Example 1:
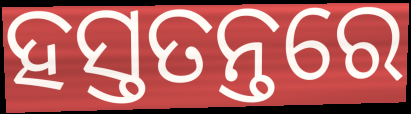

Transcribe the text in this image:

ହସ୍ତତନ୍ତରେ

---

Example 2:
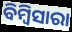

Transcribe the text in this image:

ବିମ୍ବିସାରା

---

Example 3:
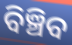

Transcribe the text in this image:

ବିଞ୍ଚିବ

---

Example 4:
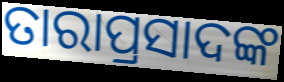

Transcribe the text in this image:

ତାରାପ୍ରସାଦଙ୍କ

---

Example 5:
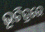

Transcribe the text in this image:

ଭୂଚିତ୍ରରେ